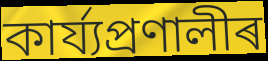
কাৰ্য্যপ্ৰণালীৰ